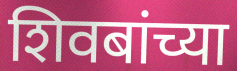
शिवबांच्या